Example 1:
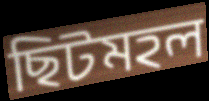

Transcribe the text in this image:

ছিটমহল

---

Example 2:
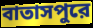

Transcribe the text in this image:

বাতাসপুরে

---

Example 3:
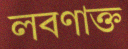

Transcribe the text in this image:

লবণাক্ত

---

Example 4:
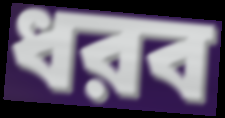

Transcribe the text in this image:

ধরব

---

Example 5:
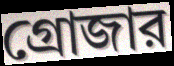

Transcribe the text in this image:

গ্রোজার